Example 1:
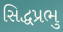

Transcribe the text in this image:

સિદ્ધપ્રભુ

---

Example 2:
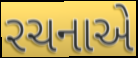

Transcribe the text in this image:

રચનાએ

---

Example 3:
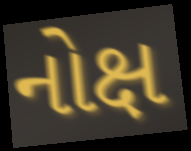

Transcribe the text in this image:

નોક્ષ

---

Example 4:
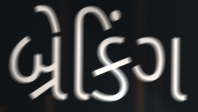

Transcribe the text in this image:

બ્રેકિંગ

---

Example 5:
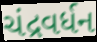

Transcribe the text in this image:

ચંદ્રવર્ધન